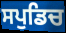
ਸਪੁਡਿਚ